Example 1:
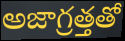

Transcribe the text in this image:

అజాగ్రత్తతో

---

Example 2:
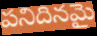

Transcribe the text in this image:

పనిదినమై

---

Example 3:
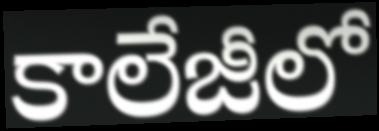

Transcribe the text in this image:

కాలేజీలో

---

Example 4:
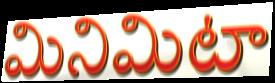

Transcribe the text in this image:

మినిమిటా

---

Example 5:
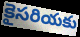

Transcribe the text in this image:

కైసరియకు